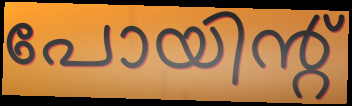
പോയിന്റ്